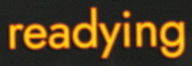
readying